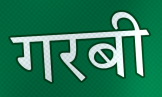
गरबी